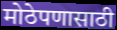
मोठेपणासाठी